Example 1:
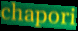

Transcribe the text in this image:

chapori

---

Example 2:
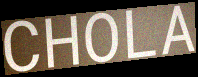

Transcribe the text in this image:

CHOLA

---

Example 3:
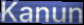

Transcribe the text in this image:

Kanun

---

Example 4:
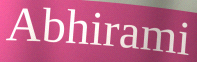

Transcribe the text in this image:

Abhirami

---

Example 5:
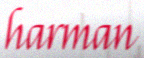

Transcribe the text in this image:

harman